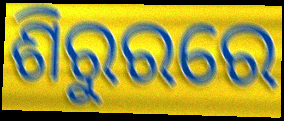
ଶିରୁରରେ